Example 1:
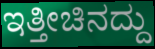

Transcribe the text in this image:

ಇತ್ತೀಚಿನದ್ದು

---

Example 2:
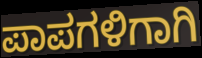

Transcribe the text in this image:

ಪಾಪಗಳಿಗಾಗಿ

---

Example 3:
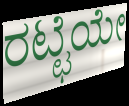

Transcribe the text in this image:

ರಟ್ಟೆಯೇ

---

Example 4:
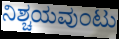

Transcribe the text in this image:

ನಿಶ್ಚಯವುಂಟು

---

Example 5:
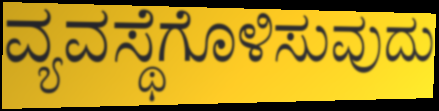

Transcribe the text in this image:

ವ್ಯವಸ್ಥೆಗೊಳಿಸುವುದು